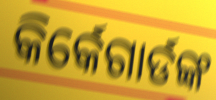
କିର୍କେଗାର୍ଡଙ୍କ